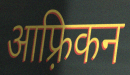
आफ़्रिकन